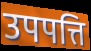
उपपत्ति